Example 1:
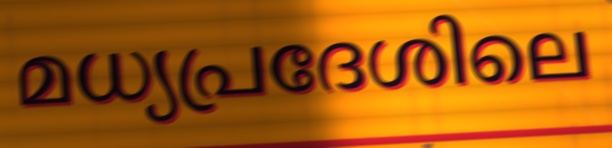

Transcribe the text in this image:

മധ്യപ്രദേശിലെ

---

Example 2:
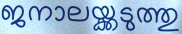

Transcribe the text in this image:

ജനാലയ്ക്കടുത്തു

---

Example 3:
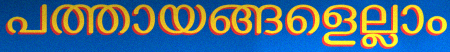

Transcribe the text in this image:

പത്തായങ്ങളെല്ലാം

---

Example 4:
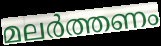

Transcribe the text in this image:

മലർത്തണം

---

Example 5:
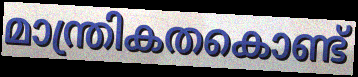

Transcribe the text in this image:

മാന്ത്രികതകൊണ്ട്